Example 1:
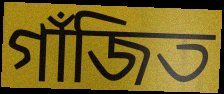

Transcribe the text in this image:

গাঁজিত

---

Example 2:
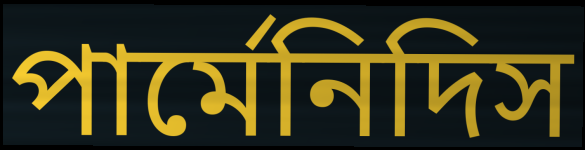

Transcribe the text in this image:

পার্মেনিদিস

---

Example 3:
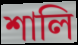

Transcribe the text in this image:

শালি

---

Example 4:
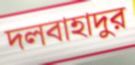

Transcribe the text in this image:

দলবাহাদুর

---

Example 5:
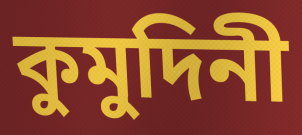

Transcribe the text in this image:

কুমুদিনী